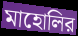
মাহোলির